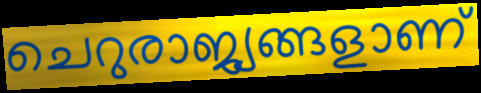
ചെറുരാജ്യങ്ങളാണ്